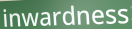
inwardness